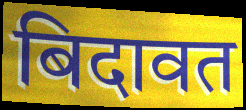
बिदावत